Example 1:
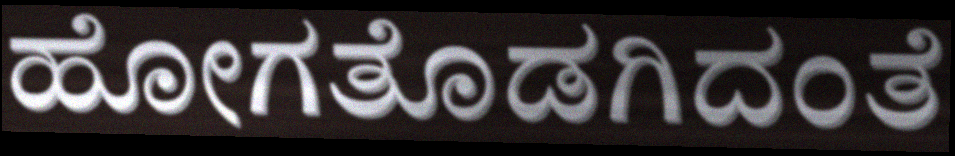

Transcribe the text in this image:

ಹೋಗತೊಡಗಿದಂತೆ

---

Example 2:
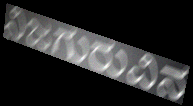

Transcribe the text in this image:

ನಿಜಗುರುವಿನ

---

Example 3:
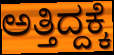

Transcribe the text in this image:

ಅತ್ತಿದ್ದಕ್ಕೆ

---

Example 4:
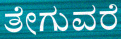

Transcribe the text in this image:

ತೇಗುವರೆ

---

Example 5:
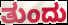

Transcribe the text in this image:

ತುಂದು